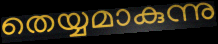
തെയ്യമാകുന്നു